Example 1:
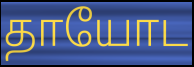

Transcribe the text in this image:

தாயோட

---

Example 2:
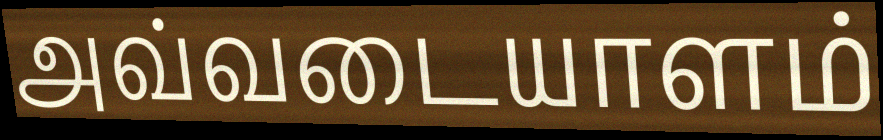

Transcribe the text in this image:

அவ்வடையாளம்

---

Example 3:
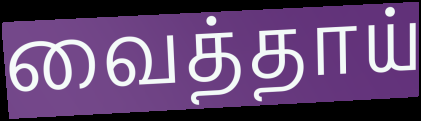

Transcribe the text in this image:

வைத்தாய்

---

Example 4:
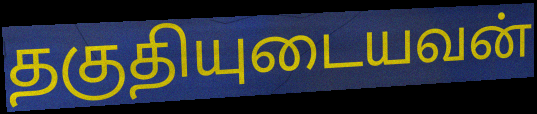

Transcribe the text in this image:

தகுதியுடையவன்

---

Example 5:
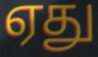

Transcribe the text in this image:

ஏது